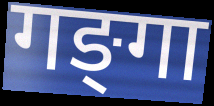
गङ्गा